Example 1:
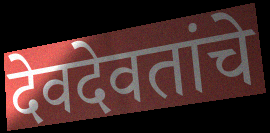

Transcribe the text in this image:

देवदेवतांचे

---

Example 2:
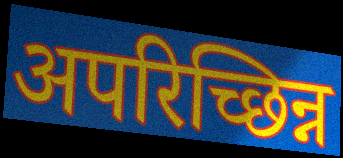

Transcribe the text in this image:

अपरिच्छिन्न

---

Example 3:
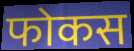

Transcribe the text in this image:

फोकस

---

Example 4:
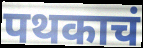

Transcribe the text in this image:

पथकाचं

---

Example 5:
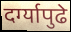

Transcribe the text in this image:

दर्ग्यापुढे